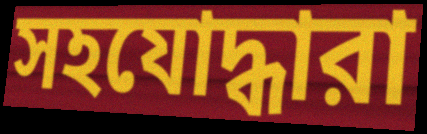
সহযোদ্ধারা